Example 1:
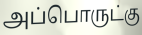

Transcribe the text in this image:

அப்பொருட்கு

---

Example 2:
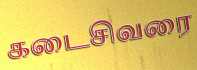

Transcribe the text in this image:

கடைசிவரை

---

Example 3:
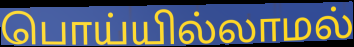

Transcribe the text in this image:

பொய்யில்லாமல்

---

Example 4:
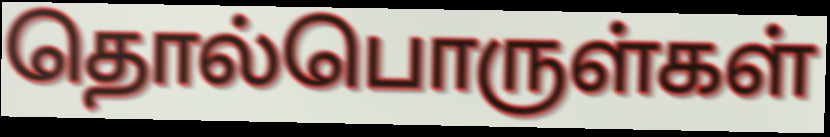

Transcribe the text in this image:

தொல்பொருள்கள்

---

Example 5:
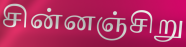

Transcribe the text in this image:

சின்னஞ்சிறு